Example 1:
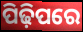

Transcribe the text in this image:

ପିଢ଼ିପରେ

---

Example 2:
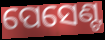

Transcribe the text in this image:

ପେସେଣ୍ଟ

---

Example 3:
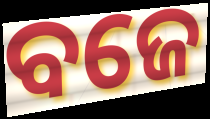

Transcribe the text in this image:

ବଜେ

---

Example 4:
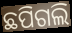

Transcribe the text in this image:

ଛପିଗଲି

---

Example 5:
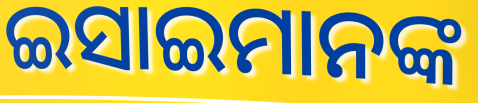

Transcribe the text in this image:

ଇସାଇମାନଙ୍କ